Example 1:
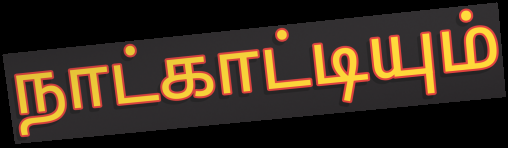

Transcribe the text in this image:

நாட்காட்டியும்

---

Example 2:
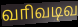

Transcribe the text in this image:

வரிவடிவ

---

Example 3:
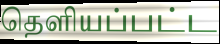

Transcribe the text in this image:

தெளியப்பட்ட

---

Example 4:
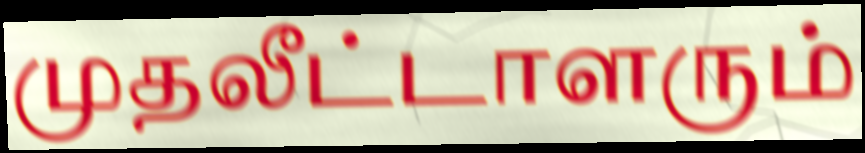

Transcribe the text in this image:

முதலீட்டாளரும்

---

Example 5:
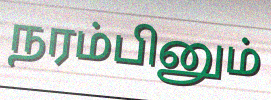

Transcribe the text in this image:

நரம்பினும்